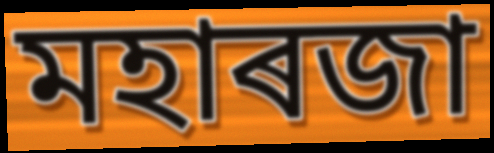
মহাৰজা